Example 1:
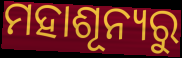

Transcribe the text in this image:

ମହାଶୂନ୍ୟରୁ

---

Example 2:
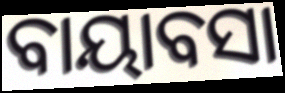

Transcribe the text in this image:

ବାୟାବସା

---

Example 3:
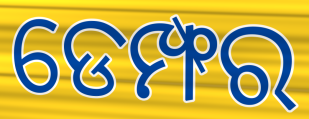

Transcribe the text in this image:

ଡେମ୍ଫର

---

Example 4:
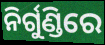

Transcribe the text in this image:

ନିର୍ଗୁଣ୍ଡିରେ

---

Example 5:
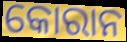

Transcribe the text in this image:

କୋରାନ